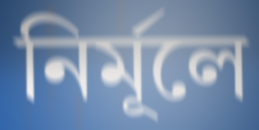
নির্মূলে